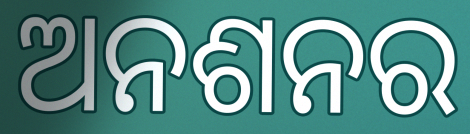
ଅନଶନର